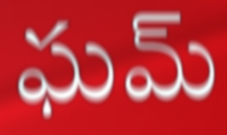
ఘమ్